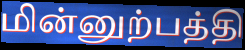
மின்னுற்பத்தி